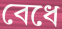
বেধে